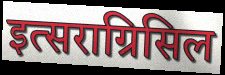
इत्सराग्रिसिल